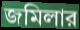
জমিলার